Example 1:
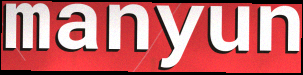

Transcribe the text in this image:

manyun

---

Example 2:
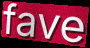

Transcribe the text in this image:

fave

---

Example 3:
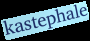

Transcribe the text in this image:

kastephale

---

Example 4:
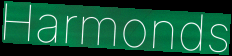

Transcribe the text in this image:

Harmonds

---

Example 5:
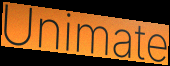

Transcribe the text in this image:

Unimate